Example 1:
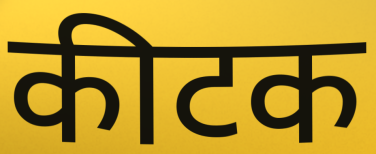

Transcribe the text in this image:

कीटक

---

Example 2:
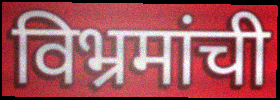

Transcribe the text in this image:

विभ्रमांची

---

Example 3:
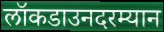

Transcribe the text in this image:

लॉकडाउनदरम्यान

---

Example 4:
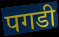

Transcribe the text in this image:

पगडी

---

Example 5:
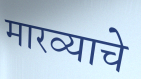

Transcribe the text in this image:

मारव्याचे